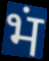
भं